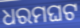
ଧରମଘଟ